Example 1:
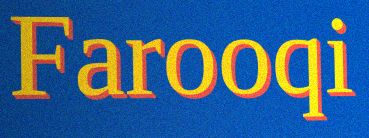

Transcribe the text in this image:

Farooqi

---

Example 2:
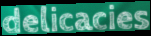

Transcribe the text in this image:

delicacies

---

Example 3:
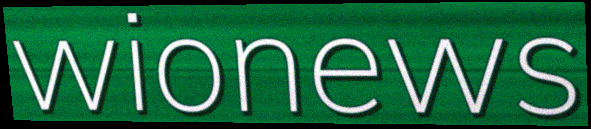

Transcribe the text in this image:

wionews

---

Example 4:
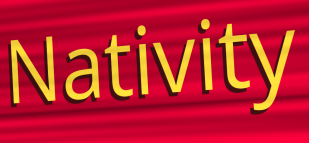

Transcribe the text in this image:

Nativity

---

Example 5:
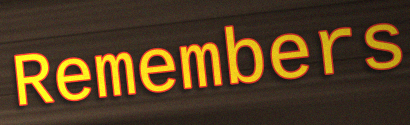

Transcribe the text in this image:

Remembers